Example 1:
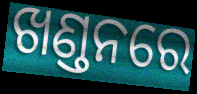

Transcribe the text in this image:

ଖଣ୍ଡନରେ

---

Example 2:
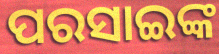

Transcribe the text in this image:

ପରସାଇଙ୍କ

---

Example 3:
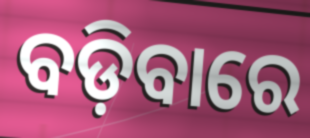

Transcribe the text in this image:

ବଡ଼ିବାରେ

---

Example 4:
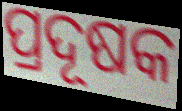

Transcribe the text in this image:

ପ୍ରଦୂଷକ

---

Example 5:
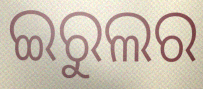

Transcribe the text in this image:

ଇରୁଲର